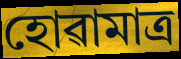
হোৱামাত্ৰ